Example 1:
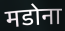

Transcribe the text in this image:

मडोना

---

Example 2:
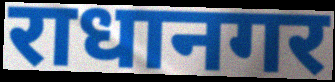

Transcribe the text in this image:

राधानगर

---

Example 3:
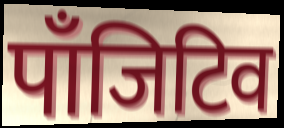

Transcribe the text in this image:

पाँजिटिव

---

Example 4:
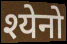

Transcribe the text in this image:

श्येनो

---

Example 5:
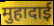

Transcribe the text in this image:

मुहादाई